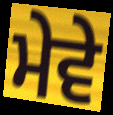
ਮੇਵੇ